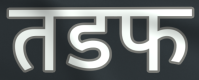
तडफ